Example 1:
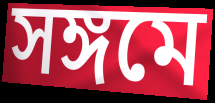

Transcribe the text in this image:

সঙ্গমে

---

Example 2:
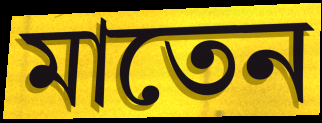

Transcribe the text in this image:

মাতেন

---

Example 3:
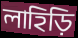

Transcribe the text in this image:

লাহিড়ি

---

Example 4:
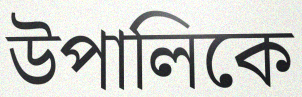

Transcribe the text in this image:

উপালিকে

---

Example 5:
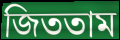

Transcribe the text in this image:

জিততাম